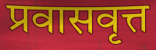
प्रवासवृत्त